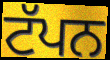
ਟੱਪਨ